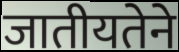
जातीयतेने